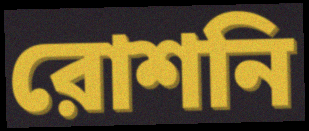
রোশনি